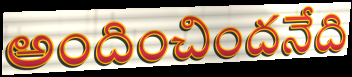
అందించిందనేది